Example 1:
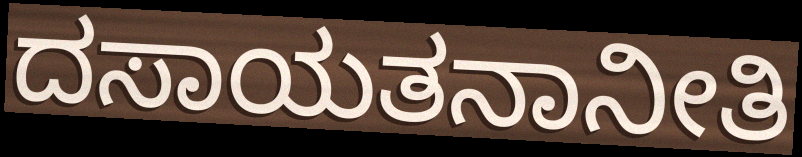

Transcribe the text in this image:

ದಸಾಯತನಾನೀತಿ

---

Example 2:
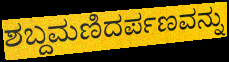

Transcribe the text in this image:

ಶಬ್ದಮಣಿದರ್ಪಣವನ್ನು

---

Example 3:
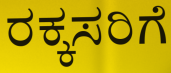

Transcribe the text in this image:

ರಕ್ಕಸರಿಗೆ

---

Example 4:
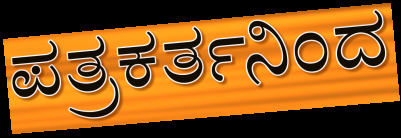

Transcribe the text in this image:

ಪತ್ರಕರ್ತನಿಂದ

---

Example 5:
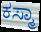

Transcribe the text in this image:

ಕಸ್ಮಾ